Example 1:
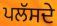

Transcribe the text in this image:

ਪਲੱਸਦੇ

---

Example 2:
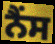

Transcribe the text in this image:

ਨੈਂਸ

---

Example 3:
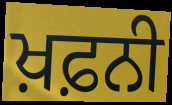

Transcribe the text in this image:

ਖ਼ਫ਼ਨੀ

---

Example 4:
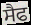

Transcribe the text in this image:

ਸੈਫ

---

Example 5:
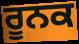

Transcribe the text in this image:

ਰੂਨਕ